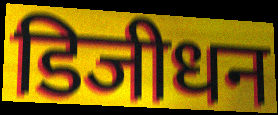
डिजीधन